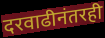
दरवाढीनंतरही